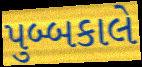
પુબ્બકાલે